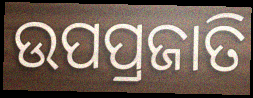
ଉପପ୍ରଜାତି